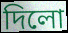
দিলো